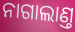
ନାଗାଲାଣ୍ତ